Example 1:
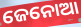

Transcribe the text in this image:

ଜେନୋଆ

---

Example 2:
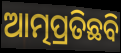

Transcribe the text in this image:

ଆତ୍ମପ୍ରତିଛବି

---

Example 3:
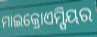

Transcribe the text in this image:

ମାଇକ୍ରୋଏମ୍ପିୟର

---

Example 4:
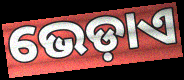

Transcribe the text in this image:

ଭେଡ଼ାଏ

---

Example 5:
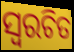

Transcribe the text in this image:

ସ୍ୱରଚିତ